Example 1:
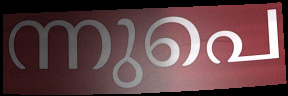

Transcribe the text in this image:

ന്നുപെ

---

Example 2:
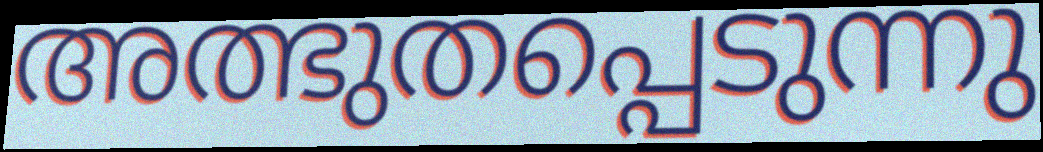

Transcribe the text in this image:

അത്ഭുതപ്പെടുന്നു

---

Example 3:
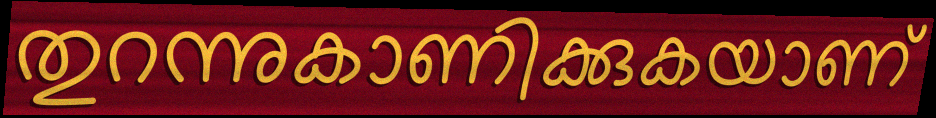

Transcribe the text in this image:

തുറന്നുകാണിക്കുകയാണ്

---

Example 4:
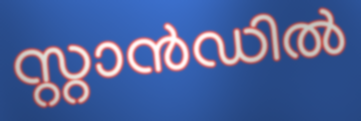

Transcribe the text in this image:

സ്റ്റാൻഡിൽ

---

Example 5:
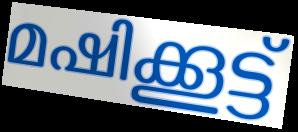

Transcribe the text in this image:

മഷിക്കൂട്ട്